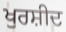
ਖੁਰਸ਼ੀਦ